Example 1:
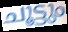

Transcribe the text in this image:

ചൂട്ടും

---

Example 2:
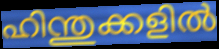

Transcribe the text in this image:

ഹിന്തുക്കളിൽ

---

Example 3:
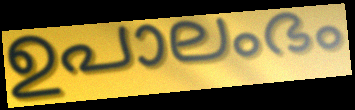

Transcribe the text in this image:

ഉപാലംഭം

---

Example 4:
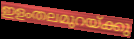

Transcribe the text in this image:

ഇളംതലമുറയ്ക്കു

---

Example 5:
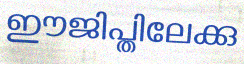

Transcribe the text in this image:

ഈജിപ്തിലേക്കു